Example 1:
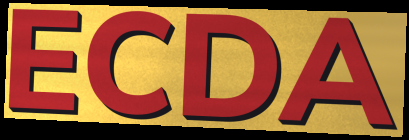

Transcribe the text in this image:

ECDA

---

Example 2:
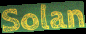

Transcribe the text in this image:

Solan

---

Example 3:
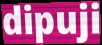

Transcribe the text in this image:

dipuji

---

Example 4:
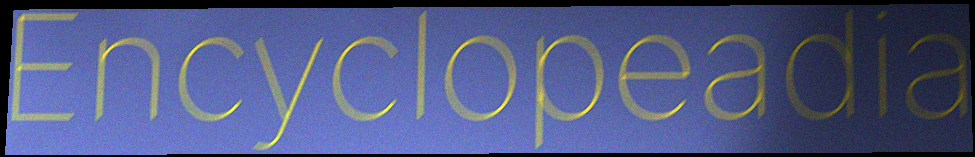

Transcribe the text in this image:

Encyclopeadia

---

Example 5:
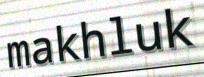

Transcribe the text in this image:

makhluk